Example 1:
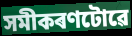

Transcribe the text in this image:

সমীকৰণটোৱে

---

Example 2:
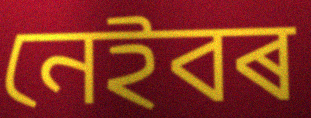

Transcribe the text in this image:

নেইবৰ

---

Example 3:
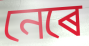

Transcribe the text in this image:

নেৰে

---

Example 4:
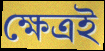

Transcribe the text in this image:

ক্ষেত্ৰই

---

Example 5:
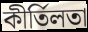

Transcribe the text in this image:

কীৰ্তিলতা